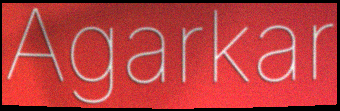
Agarkar